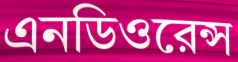
এনডিওরেন্স